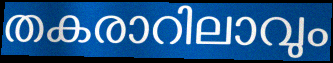
തകരാറിലാവും